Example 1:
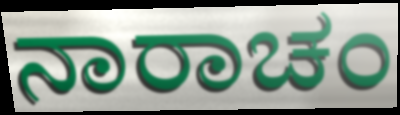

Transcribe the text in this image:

ನಾರಾಚಂ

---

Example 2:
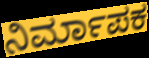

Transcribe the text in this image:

ನಿರ್ಮಾಪಕ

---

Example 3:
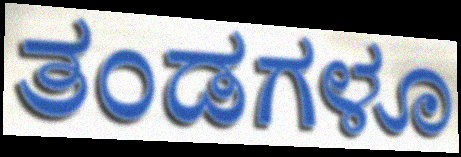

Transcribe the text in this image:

ತಂಡಗಳೂ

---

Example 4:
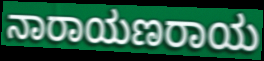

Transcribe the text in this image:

ನಾರಾಯಣರಾಯ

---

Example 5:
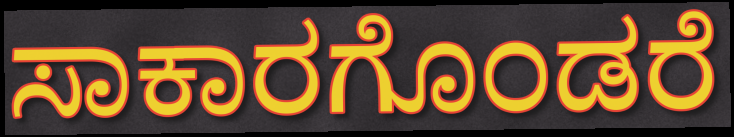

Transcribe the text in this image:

ಸಾಕಾರಗೊಂಡರೆ